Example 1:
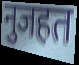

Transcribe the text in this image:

नुजहत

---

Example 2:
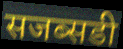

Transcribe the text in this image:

सजब्सडी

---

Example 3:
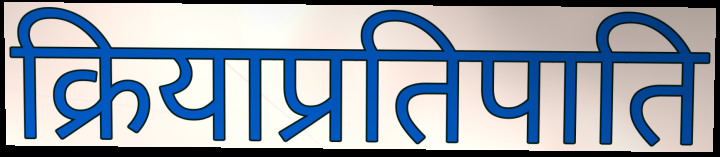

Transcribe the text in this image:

क्रियाप्रतिपाति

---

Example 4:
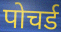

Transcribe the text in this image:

पोचर्ड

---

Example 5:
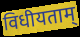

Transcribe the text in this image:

विधीयताम्